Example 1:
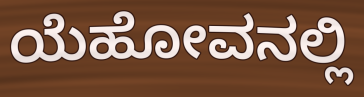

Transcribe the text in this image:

ಯೆಹೋವನಲ್ಲಿ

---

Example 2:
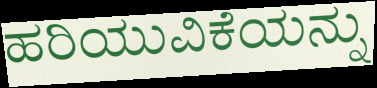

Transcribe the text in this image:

ಹರಿಯುವಿಕೆಯನ್ನು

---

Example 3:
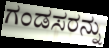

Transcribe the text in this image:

ಗಂಡಸರನ್ನು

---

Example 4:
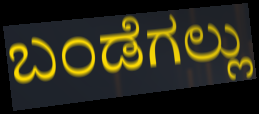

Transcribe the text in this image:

ಬಂಡೆಗಲ್ಲು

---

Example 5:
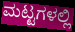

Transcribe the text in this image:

ಮಟ್ಟಗಳಲ್ಲಿ